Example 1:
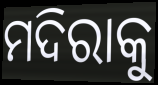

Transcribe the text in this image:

ମଦିରାକୁ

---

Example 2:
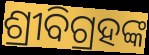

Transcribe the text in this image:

ଶ୍ରୀବିଗ୍ରହଙ୍କ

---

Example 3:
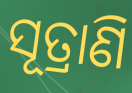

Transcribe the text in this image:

ସୂତ୍ରାଣି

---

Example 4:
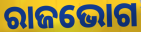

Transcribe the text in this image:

ରାଜଭୋଗ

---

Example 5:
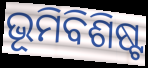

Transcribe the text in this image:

ଭୂମିବିଶିଷ୍ଟ